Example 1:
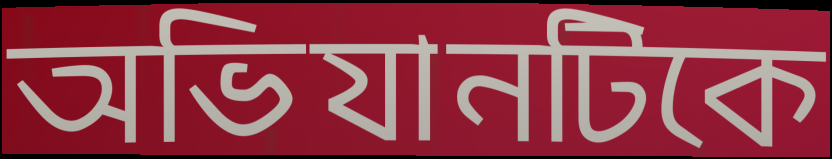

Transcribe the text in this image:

অভিযানটিকে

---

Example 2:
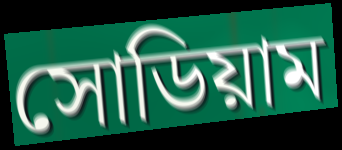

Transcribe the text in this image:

সোডিয়াম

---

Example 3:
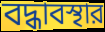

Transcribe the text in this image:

বদ্ধাবস্থার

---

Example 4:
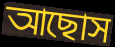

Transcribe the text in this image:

আছোস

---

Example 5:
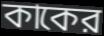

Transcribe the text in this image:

কাকের